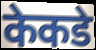
केकडे